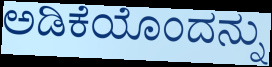
ಅಡಿಕೆಯೊಂದನ್ನು